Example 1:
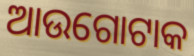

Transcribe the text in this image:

ଆଉଗୋଟାକ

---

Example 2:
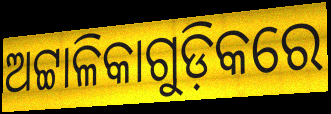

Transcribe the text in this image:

ଅଟ୍ଟାଳିକାଗୁଡ଼ିକରେ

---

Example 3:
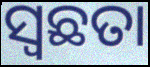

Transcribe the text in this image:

ସ୍ବଛତା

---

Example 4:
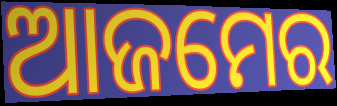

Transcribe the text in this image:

ଆଜମେର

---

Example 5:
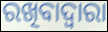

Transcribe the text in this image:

ରଖିବାଦ୍ୱାରା